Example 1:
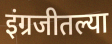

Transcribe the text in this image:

इंग्रजीतल्या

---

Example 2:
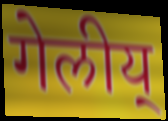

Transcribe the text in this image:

गेलीय्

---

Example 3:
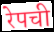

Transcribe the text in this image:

रेपची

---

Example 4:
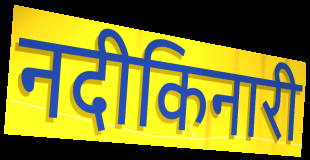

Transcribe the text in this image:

नदीकिनारी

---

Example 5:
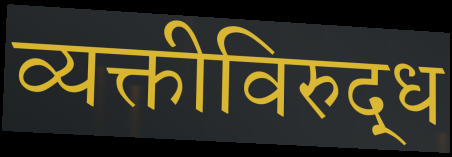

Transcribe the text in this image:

व्यक्तीविरुद्ध